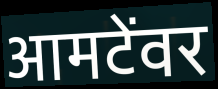
आमटेंवर